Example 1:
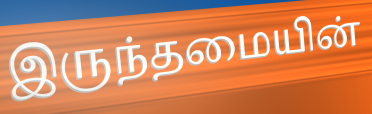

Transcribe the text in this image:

இருந்தமையின்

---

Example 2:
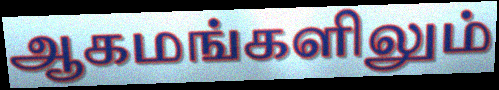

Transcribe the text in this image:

ஆகமங்களிலும்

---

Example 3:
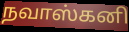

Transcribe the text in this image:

நவாஸ்கனி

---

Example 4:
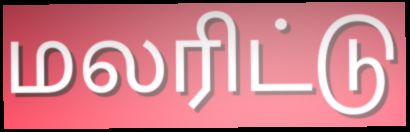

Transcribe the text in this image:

மலரிட்டு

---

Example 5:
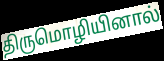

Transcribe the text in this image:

திருமொழியினால்